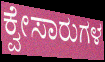
ಕ್ವೇಸಾರುಗಳ